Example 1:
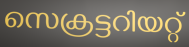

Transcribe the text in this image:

സെക്രട്ടറിയറ്റ്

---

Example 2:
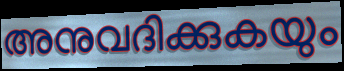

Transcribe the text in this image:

അനുവദിക്കുകയും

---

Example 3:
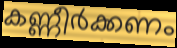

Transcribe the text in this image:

കണ്ണീർക്കണം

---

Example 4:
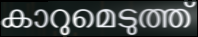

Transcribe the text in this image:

കാറുമെടുത്ത്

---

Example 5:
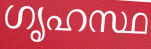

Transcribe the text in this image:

ഗൃഹസ്ഥ